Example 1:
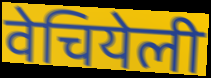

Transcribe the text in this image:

वेचियेली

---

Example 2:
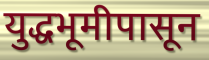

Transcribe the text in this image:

युद्धभूमीपासून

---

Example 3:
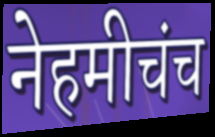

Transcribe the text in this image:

नेहमीचंच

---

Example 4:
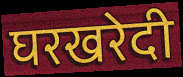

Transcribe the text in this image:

घरखरेदी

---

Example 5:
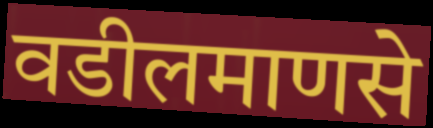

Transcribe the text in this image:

वडीलमाणसे